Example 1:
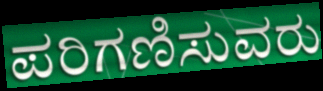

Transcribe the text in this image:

ಪರಿಗಣಿಸುವರು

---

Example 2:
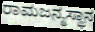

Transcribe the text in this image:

ರಾಮಜನ್ಮಸ್ಥಾನ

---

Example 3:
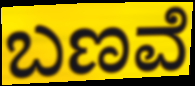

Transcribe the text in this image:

ಬಣವೆ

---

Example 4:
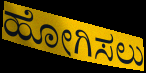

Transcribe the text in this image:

ಹೋಗಿಸಲು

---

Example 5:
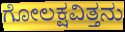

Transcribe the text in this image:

ಗೋಲಕ್ಷವಿತ್ತನು